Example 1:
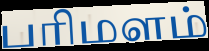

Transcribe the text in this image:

பரிமளம்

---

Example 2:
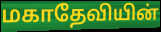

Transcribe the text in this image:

மகாதேவியின்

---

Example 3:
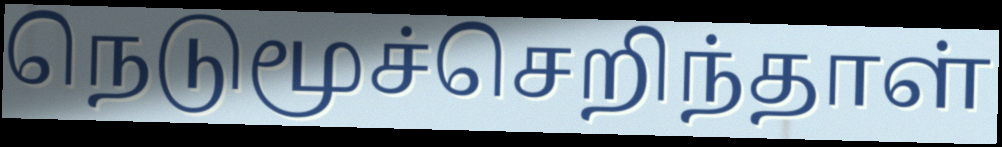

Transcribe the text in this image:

நெடுமூச்செறிந்தாள்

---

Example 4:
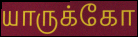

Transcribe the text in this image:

யாருக்கோ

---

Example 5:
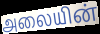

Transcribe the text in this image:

அலையின்